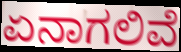
ಏನಾಗಲಿವೆ